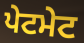
ਪੇਟਮੇਟ